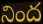
నింద